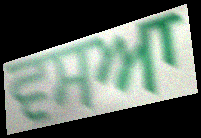
ਵਸਆ